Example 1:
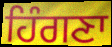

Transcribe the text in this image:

ਹਿੰਗਣਾ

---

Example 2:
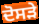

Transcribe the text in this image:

ਦੋਸੜੇ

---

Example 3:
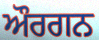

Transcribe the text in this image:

ਔਰਗਨ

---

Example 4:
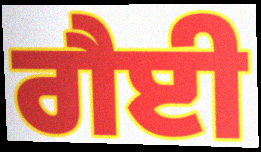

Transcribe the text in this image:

ਗੈਈ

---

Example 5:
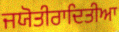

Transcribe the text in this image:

ਜਯੋਤੀਰਾਦਿਤੀਆ